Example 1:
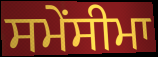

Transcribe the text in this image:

ਸਮੇਂਸੀਮਾ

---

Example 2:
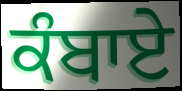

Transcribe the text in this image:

ਕੰਬਾਏ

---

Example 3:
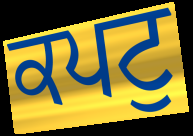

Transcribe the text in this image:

ਕਪਟੁ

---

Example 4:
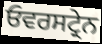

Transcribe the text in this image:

ਓਵਰਸਟ੍ਰੇਨ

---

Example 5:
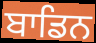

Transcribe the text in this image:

ਬਾਡਿਨ